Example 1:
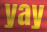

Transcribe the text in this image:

yay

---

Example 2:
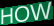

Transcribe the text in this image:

HOW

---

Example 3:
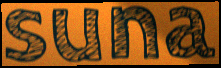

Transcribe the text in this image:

suna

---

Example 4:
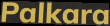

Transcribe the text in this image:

Palkara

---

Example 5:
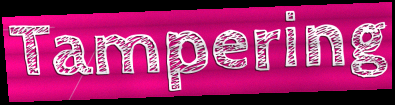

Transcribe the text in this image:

Tampering